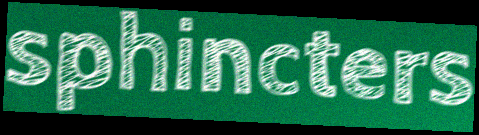
sphincters